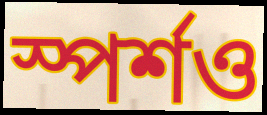
স্পর্শও